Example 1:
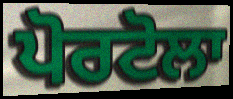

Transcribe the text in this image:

ਪੋਰਟੋਲਾ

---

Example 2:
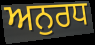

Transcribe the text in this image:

ਅਨੁਰਧ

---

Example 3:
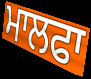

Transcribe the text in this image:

ਮਾਲਫਾ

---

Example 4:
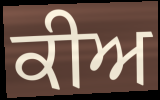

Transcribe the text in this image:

ਕੀਅ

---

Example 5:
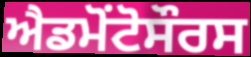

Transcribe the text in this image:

ਐਡਮੋਂਟੋਸੌਰਸ